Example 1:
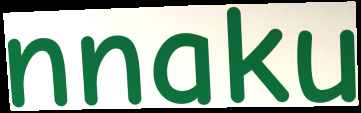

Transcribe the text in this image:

nnaku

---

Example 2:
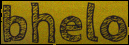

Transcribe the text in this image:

bhelo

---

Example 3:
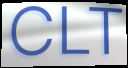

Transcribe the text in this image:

CLT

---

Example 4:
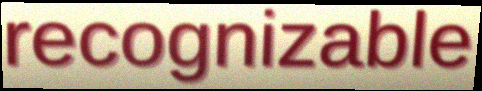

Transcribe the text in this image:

recognizable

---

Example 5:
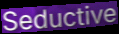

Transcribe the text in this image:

Seductive